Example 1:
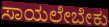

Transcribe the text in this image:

ಸಾಯಲೇಬೇಕು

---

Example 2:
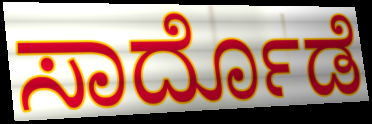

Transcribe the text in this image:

ಸಾರ್ದೊಡೆ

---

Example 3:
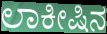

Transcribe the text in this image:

ಲಾಕೀಷಿನ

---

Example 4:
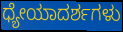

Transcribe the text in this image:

ಧ್ಯೇಯಾದರ್ಶಗಳು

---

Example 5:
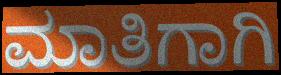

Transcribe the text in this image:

ಮಾತಿಗಾಗಿ